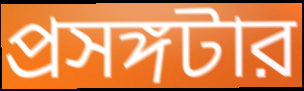
প্রসঙ্গটার